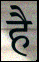
है